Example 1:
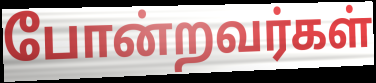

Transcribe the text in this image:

போன்றவர்கள்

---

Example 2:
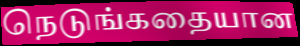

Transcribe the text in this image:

நெடுங்கதையான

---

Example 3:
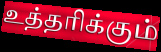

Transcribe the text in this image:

உத்தரிக்கும்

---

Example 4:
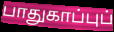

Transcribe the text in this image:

பாதுகாப்புப்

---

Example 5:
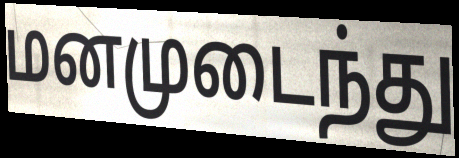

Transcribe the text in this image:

மனமுடைந்து